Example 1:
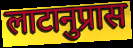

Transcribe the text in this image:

लाटानुप्रास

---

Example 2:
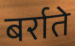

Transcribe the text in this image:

बर्राते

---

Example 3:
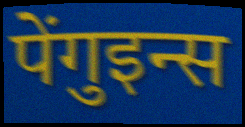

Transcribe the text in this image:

पेंगुइन्स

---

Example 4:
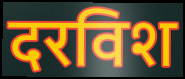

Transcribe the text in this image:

दरविश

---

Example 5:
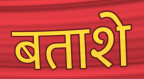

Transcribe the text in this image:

बताशे